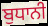
ਬੁਧਾਨੀ